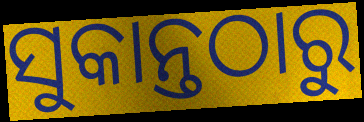
ସୁକାନ୍ତଠାରୁ